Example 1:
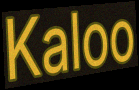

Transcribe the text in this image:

Kaloo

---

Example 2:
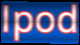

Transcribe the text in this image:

Ipod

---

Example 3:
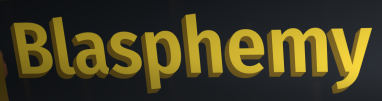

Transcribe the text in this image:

Blasphemy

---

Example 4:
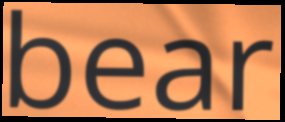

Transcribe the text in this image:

bear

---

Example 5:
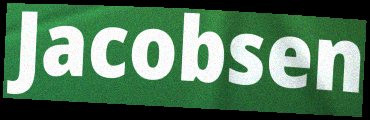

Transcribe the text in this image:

Jacobsen